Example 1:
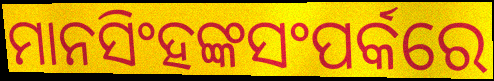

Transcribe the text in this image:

ମାନସିଂହଙ୍କସଂପର୍କରେ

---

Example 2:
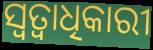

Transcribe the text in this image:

ସ୍ବତ୍ବାଧିକାରୀ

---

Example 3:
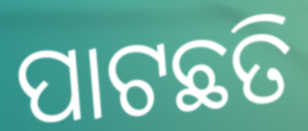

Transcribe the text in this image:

ପାଟଛତି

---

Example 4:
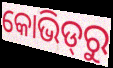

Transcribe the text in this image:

କୋଭିଡ୍‌ରୁ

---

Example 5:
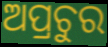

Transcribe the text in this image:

ଅପ୍ରଚୁର